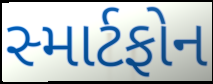
સ્માર્ટફોન